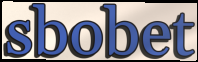
sbobet